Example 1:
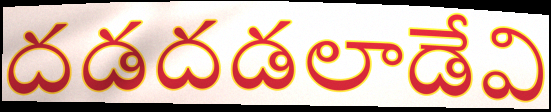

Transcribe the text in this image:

దడదడలాడేవి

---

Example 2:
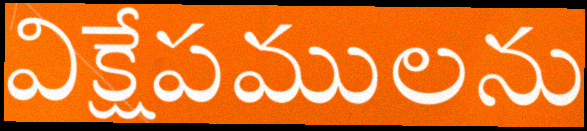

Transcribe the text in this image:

విక్షేపములను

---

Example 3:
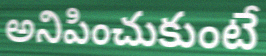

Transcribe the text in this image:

అనిపించుకుంటే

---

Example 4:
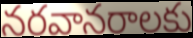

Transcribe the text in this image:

నరవానరాలకు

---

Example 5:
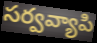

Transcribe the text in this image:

సర్వవ్యాపి